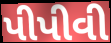
પીપીવી